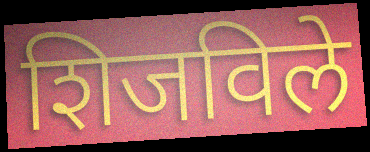
शिजविले